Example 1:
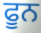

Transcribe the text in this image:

ਫੂਨ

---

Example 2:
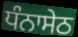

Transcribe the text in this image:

ਧੰਨਾਸੇਠ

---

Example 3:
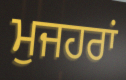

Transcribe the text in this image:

ਮੁਜਹਰਾਂ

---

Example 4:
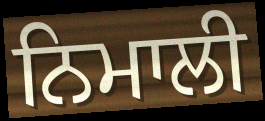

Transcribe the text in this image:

ਨਿਮਾਲੀ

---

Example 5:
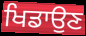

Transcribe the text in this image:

ਖਿਡਾਉਣ